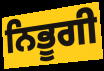
ਨਿਭੂਗੀ